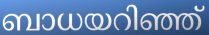
ബാധയറിഞ്ഞ്